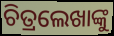
ଚିତ୍ରଲେଖାଙ୍କୁ